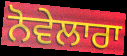
ਨੋਵੇਲਾਰਾ